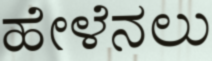
ಹೇಳೆನಲು